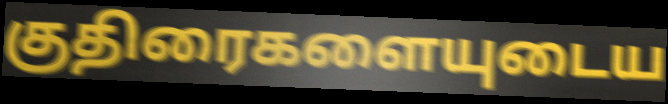
குதிரைகளையுடைய